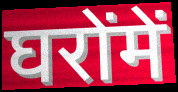
घरोंमें